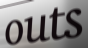
outs